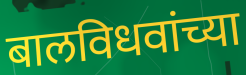
बालविधवांच्या